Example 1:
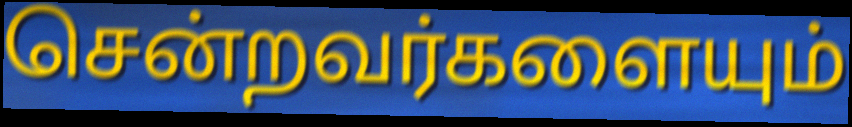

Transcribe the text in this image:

சென்றவர்களையும்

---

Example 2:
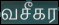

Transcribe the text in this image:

வசீகர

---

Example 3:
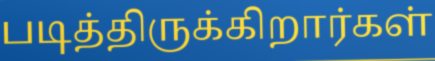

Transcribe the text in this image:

படித்திருக்கிறார்கள்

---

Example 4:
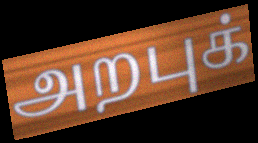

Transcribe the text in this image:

அறபுக்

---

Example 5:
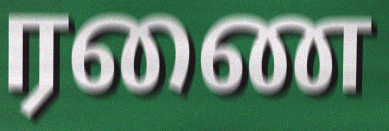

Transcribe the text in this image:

ரணை